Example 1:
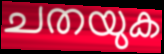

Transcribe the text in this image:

ചതയുക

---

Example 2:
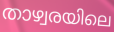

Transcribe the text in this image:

താഴ്വരയിലെ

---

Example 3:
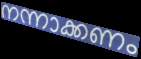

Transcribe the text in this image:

നന്നാക്കണം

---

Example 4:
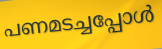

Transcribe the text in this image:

പണമടച്ചപ്പോൾ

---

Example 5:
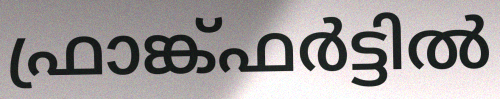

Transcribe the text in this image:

ഫ്രാങ്ക്ഫർട്ടിൽ